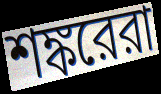
শঙ্করেরা